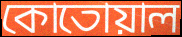
কোতোয়াল